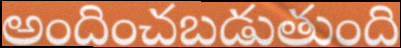
అందించబడుతుంది